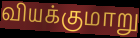
வியக்குமாறு